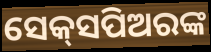
ସେକ୍‌ସପିଅରଙ୍କ